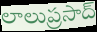
లాలుప్రసాద్